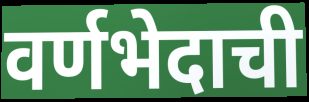
वर्णभेदाची